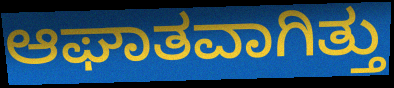
ಆಘಾತವಾಗಿತ್ತು